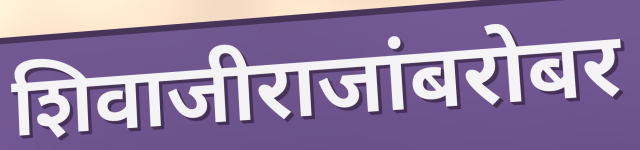
शिवाजीराजांबरोबर